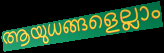
ആയുധങ്ങളെല്ലാം